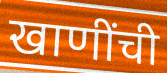
खाणींची